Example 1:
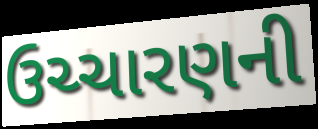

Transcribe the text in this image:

ઉચ્ચારણની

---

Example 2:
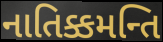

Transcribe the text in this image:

નાતિક્કમન્તિ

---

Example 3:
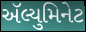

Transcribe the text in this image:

ઍલ્યુમિનેટ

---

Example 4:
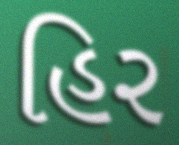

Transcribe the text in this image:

હિર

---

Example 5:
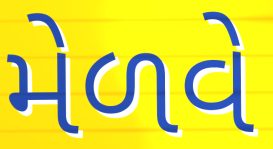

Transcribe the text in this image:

મેળવે